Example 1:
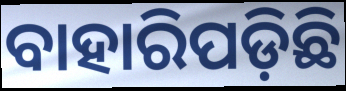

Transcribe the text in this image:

ବାହାରିପଡ଼ିଛି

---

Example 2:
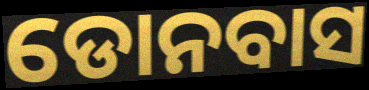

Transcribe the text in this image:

ଡୋନବାସ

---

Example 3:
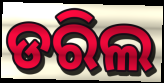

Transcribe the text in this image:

ଡରିଲ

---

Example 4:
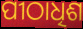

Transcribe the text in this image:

ପୀଠାଧିଶ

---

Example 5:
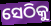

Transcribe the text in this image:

ସେଠିକୁ